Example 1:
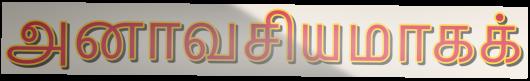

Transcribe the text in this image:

அனாவசியமாகக்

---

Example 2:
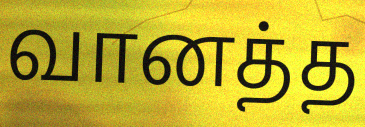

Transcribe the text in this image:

வானத்த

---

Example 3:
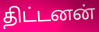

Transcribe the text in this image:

திட்டனன்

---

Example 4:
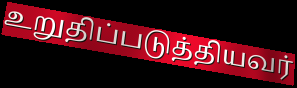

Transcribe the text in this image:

உறுதிப்படுத்தியவர்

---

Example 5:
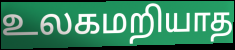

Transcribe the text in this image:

உலகமறியாத